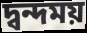
দ্বন্দময়